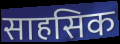
साहसिक